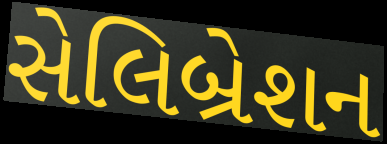
સેલિબ્રેશન